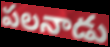
పలనాడు